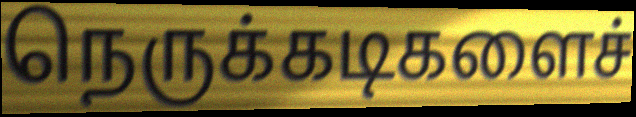
நெருக்கடிகளைச்